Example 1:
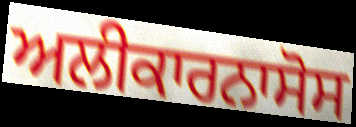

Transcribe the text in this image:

ਅਲੀਕਾਰਨਾਸੋਸ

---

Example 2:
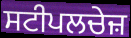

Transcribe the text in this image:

ਸਟੀਪਲਚੇਜ਼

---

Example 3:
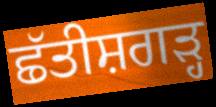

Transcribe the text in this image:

ਛੱਤੀਸ਼ਗੜ੍ਹ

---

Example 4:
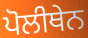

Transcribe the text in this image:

ਪੋਲੀਥੇਨ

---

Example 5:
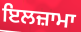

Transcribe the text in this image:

ਇਲਜ਼ਾਮਾ